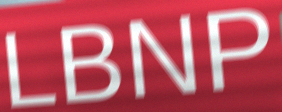
LBNP